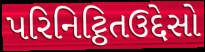
પરિનિટ્ઠિતઉદ્દેસો